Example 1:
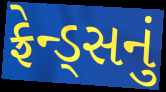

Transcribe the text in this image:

ફ્રેન્ડ્સનું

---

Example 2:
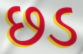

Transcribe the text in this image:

છડ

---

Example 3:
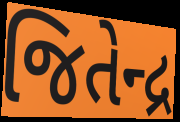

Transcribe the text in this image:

જિતેન્દ્ર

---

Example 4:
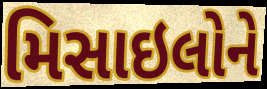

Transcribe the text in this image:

મિસાઇલોને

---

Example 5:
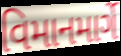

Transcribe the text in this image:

વિમાનમાર્ગે